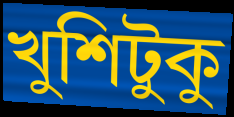
খুশিটুকু